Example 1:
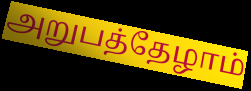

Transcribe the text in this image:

அறுபத்தேழாம்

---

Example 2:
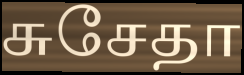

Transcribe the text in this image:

சுசேதா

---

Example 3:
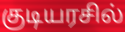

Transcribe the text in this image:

குடியரசில்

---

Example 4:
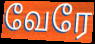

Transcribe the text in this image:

வேரே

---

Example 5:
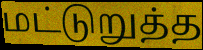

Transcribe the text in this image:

மட்டுறுத்த